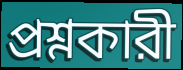
প্রশ্নকারী